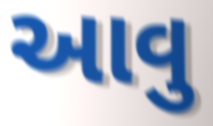
આવુ